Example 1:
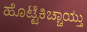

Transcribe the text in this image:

ಹೊಟ್ಟೆಕಿಚ್ಚಾಯ್ತು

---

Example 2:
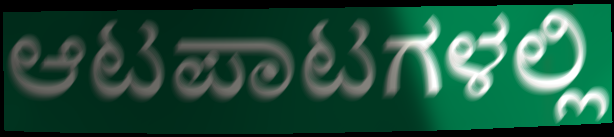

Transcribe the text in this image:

ಆಟಪಾಟಗಳಲ್ಲಿ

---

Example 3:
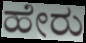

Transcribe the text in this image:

ಹೇರು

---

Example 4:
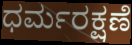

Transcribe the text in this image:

ಧರ್ಮರಕ್ಷಣೆ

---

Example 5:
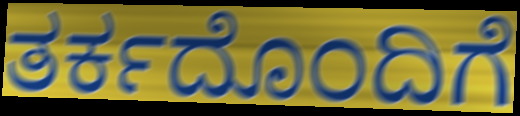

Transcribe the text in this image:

ತರ್ಕದೊಂದಿಗೆ